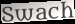
Swach